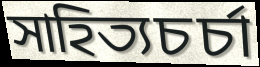
সাহিত্যচর্চা